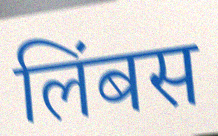
लिंबस